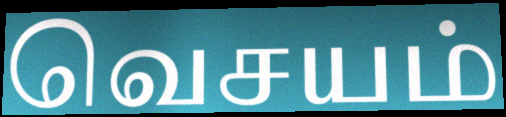
வெசயம்